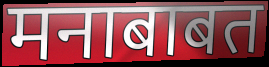
मनाबाबत